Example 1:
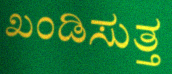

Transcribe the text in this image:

ಖಂಡಿಸುತ್ತ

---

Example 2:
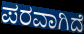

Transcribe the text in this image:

ಪರವಾಗಿದೆ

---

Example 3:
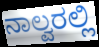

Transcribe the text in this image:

ನಾಲ್ವರಲ್ಲಿ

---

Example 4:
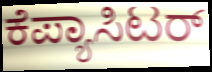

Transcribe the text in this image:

ಕೆಪ್ಯಾಸಿಟರ್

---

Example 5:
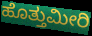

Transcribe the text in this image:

ಹೊತ್ತುಮೀರಿ